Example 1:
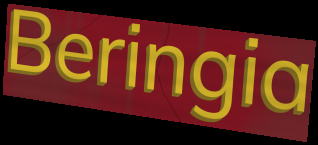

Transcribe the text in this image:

Beringia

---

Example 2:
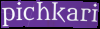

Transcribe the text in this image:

pichkari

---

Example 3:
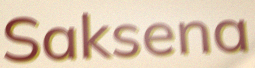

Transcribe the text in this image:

Saksena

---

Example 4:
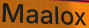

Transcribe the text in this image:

Maalox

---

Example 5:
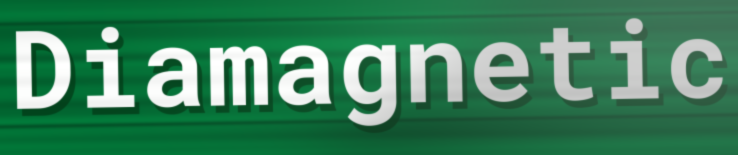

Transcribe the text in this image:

Diamagnetic